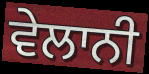
ਵੇਲਾਨੀ